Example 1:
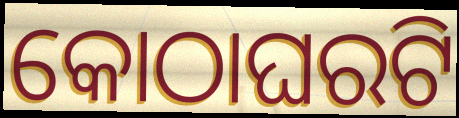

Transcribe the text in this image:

କୋଠାଘରଟି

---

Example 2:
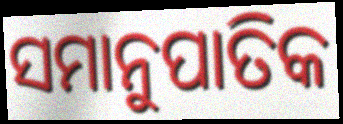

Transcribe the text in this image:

ସମାନୁପାତିକ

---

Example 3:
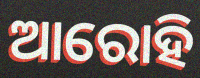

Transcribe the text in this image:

ଆରୋହି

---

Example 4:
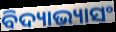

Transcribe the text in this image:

ବିଦ୍ୟାଭ୍ୟାସଂ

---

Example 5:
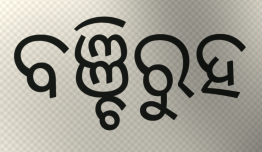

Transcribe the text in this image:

ବଞ୍ଚିରୁହ